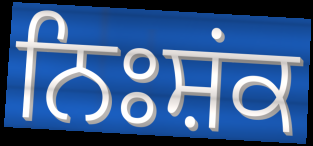
ਨਿਃਸ਼ਂਕ